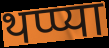
थप्प्या